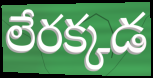
లేరక్కడ